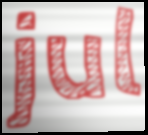
jul